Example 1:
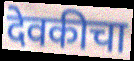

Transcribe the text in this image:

देवकीचा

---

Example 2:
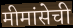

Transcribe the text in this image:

मीमांसेची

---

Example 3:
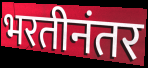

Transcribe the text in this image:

भरतीनंतर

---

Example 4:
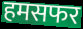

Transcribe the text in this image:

हमसफर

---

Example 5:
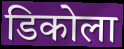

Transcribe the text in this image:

डिकोला